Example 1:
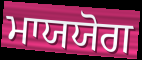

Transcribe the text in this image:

ਮਾਯਯੋਗ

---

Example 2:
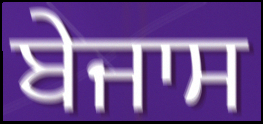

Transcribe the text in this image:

ਬੇਜਾਸ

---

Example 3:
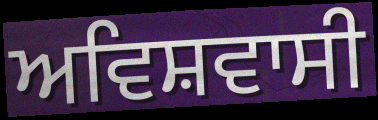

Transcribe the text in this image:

ਅਵਿਸ਼ਵਾਸੀ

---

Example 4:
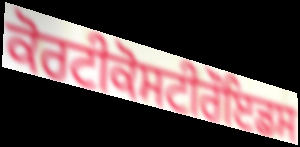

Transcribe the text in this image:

ਕੋਰਟੀਕੋਸਟੀਰੌਇਡਸ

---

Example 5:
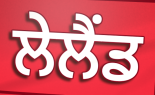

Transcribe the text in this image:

ਲੇਲੈਂਡ